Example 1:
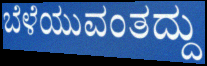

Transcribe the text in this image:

ಬೆಳೆಯುವಂತದ್ದು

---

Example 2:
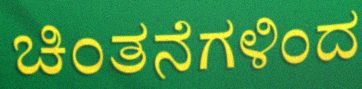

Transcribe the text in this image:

ಚಿಂತನೆಗಳಿಂದ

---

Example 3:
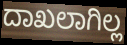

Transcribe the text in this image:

ದಾಖಲಾಗಿಲ್ಲ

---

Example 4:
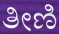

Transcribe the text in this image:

ತೀಣಿ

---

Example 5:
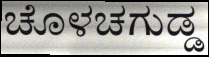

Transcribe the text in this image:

ಚೊಳಚಗುಡ್ಡ